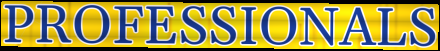
PROFESSIONALS